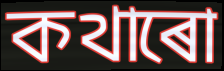
কথাৰো